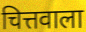
चित्तवाला